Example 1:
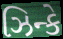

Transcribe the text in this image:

ઝિન્કે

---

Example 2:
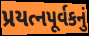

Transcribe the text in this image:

પ્રયત્નપૂર્વકનું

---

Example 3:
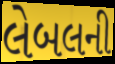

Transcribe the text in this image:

લેબલની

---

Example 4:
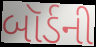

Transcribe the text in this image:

બૉર્ડની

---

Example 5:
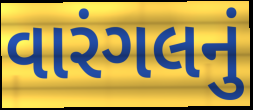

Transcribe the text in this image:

વારંગલનું